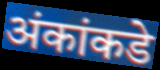
अंकांकडे